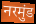
नरमुंड